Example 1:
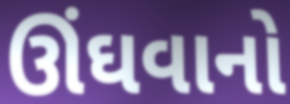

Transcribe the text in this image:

ઊંઘવાનો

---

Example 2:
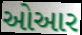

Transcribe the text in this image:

ઓઆર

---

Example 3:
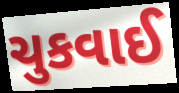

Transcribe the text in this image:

ચુકવાઈ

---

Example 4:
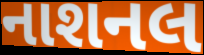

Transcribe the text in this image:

નાશનલ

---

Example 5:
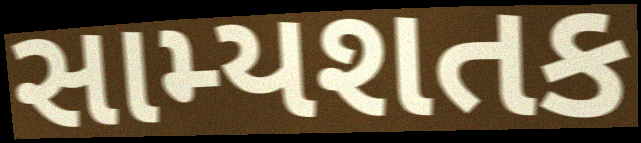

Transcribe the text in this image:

સામ્યશતક